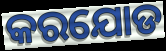
କରଯୋଡ